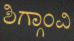
ಶಿಗ್ಗಾಂವಿ